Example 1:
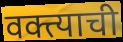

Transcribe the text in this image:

वक्त्याची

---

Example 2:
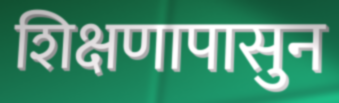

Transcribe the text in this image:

शिक्षणापासुन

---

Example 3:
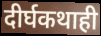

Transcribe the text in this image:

दीर्घकथाही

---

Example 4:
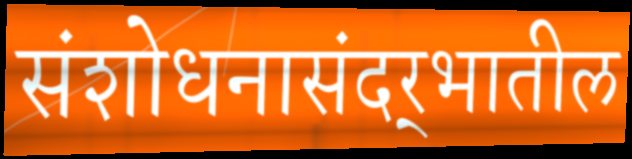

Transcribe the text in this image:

संशोधनासंदर्भातील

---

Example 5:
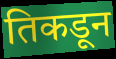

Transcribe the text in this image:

तिकडून